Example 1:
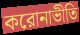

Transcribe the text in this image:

করোনাভীতি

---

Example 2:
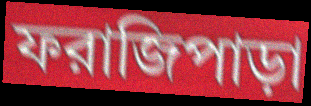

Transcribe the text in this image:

ফরাজিপাড়া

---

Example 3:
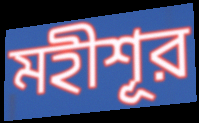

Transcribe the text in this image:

মহীশূর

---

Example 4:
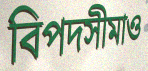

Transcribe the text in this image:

বিপদসীমাও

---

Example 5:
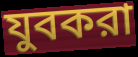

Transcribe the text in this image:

যুবকরা